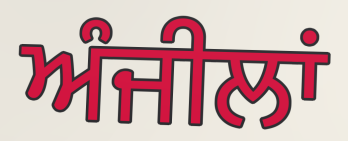
ਅੰਜੀਲਾਂ